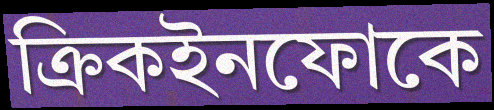
ক্রিকইনফোকে